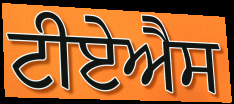
ਟੀਏਐਸ